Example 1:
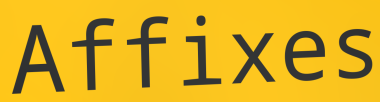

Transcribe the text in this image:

Affixes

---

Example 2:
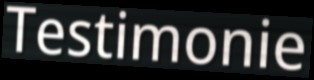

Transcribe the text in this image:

Testimonie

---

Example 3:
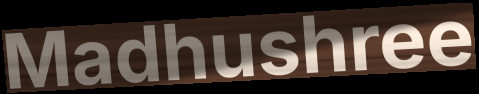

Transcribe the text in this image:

Madhushree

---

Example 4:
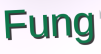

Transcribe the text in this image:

Fung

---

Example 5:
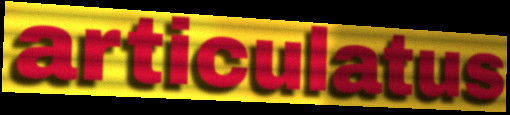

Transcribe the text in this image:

articulatus